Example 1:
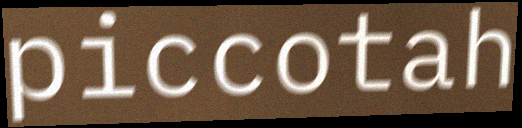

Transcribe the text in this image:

piccotah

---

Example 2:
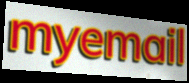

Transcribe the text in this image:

myemail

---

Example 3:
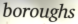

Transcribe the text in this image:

boroughs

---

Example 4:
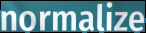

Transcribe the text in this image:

normalize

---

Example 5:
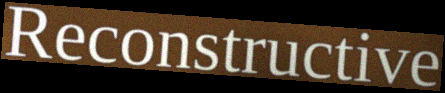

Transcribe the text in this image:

Reconstructive